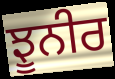
ਝੂਨੀਰ